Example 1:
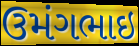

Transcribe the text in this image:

ઉમંગભાઇ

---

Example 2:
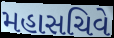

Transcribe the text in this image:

મહાસચિવે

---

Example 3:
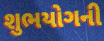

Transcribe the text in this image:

શુભયોગની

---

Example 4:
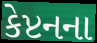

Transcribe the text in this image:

કેપ્ટનના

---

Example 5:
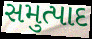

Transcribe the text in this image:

સમુત્પાદ